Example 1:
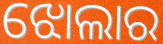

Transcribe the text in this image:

ଝୋଲାର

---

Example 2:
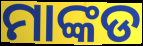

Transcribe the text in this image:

ମାଙ୍କଡ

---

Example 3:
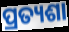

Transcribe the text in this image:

ପ୍ରତ୍ୟଶା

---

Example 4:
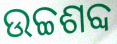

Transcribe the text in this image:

ଉଚ୍ଚଶବ୍ଦ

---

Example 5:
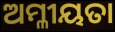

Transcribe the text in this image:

ଅମ୍ଳୀୟତା